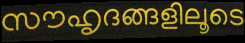
സൗഹൃദങ്ങളിലൂടെ